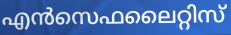
എൻസെഫലൈറ്റിസ്